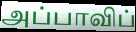
அப்பாவிப்